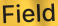
Field